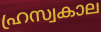
ഹ്രസ്വകാല